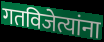
गतविजेत्यांना